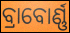
ବ୍ରାବୋର୍ଣ୍ଣ